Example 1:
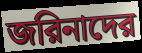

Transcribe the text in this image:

জরিনাদের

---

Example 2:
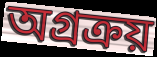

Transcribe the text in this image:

অগ্রক্রয়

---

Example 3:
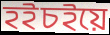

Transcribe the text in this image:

হইচইয়ে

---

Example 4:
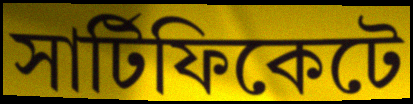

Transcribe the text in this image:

সার্টিফিকেটে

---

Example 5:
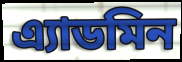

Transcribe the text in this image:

এ্যাডমিন